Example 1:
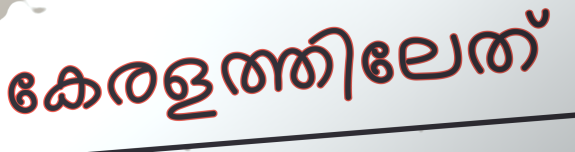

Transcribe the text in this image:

കേരളത്തിലേത്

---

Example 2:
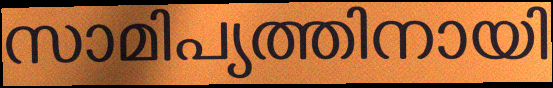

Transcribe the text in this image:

സാമിപ്യത്തിനായി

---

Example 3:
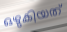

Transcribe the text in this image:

ഒഴുകിയത്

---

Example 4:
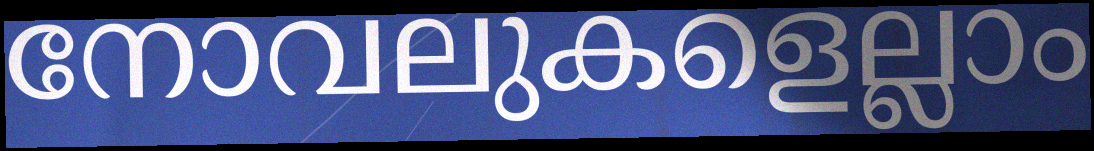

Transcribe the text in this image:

നോവലുകളെല്ലാം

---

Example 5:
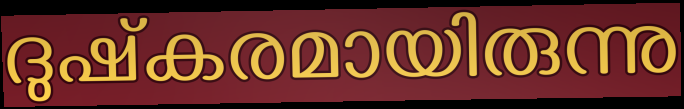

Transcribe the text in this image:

ദുഷ്‌കരമായിരുന്നു